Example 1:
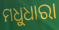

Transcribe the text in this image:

ମଧୁଧାରା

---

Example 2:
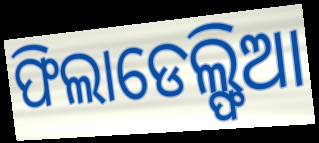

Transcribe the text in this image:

ଫିଲାଡେଲ୍ଫିଆ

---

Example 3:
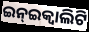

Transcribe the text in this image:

ଇନ୍ଇକ୍ଵାଲିଟି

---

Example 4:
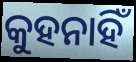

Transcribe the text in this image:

କୁହନାହିଁ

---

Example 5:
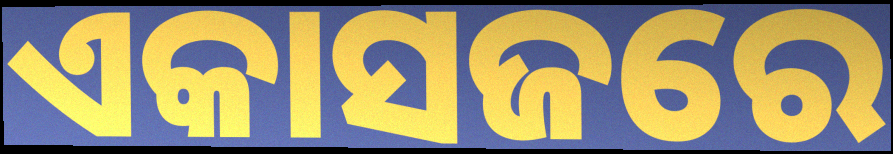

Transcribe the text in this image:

ଏକାସଜରେ